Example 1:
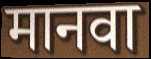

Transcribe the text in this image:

मानवा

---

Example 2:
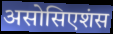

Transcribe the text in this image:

असोसिएशंस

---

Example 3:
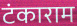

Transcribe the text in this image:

टंकाराम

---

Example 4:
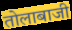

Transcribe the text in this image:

तोलाबाजी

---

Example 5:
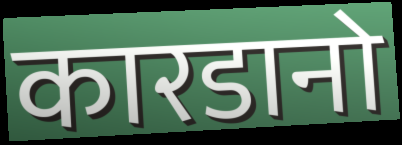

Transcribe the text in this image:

कारडानो